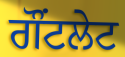
ਗੌਂਟਲੇਟ